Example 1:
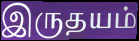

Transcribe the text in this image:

இருதயம்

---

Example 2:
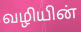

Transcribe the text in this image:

வழியின்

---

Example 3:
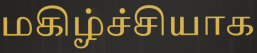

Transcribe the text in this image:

மகிழ்ச்சியாக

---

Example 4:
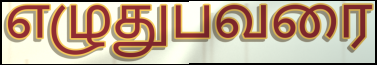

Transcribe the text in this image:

எழுதுபவரை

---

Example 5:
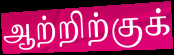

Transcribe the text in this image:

ஆற்றிற்குக்